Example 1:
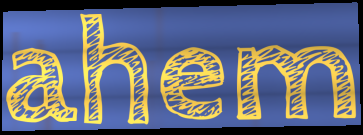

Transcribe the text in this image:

ahem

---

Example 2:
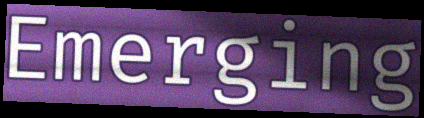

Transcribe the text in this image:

Emerging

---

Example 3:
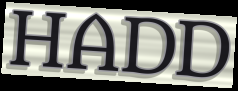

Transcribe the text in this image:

HADD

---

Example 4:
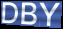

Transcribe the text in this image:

DBY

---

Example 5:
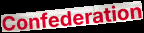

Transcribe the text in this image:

Confederation